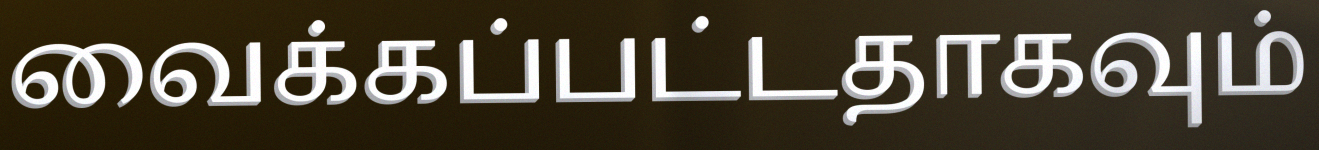
வைக்கப்பட்டதாகவும்